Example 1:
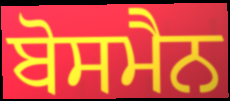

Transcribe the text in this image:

ਬੋਸਮੈਨ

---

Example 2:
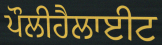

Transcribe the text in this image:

ਪੌਲੀਹੈਲਾਈਟ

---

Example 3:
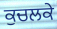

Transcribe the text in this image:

ਕੁਚਲਕੇ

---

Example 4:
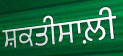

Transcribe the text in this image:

ਸ਼ਕਤੀਸਾਲ਼ੀ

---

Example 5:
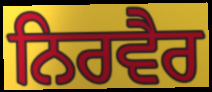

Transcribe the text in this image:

ਨਿਰਵੈਰ